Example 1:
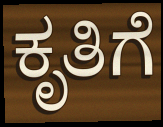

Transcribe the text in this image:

ಕೃತಿಗೆ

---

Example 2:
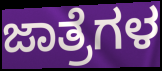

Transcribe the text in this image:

ಜಾತ್ರೆಗಳ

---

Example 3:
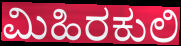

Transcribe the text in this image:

ಮಿಹಿರಕುಲಿ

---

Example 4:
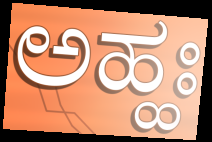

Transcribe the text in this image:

ಅಹ್ಹಃ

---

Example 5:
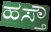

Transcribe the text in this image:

ಹಸ್ತೌ